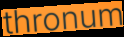
thronum